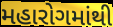
મહારોગમાંથી